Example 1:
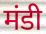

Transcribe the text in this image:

मंडी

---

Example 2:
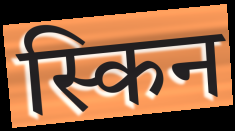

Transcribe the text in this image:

स्‍किन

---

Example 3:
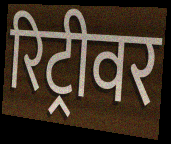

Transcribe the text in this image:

रिट्रीवर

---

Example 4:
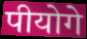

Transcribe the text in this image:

पीयोगे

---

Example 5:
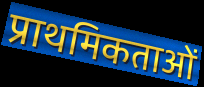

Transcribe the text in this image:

प्राथमिकताओं